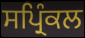
ਸਪ੍ਰਿੰਕਲ